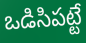
ఒడిసిపట్టే